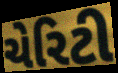
ચેરિટી